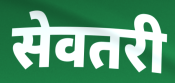
सेवतरी